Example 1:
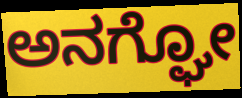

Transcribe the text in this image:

ಅನಗ್ಘೋ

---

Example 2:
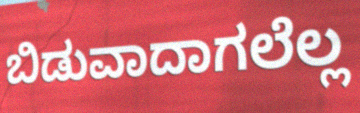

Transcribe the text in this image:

ಬಿಡುವಾದಾಗಲೆಲ್ಲ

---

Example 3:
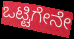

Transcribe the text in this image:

ಒಟ್ಟಿಗೇನೇ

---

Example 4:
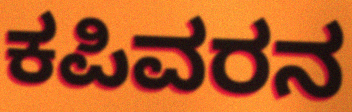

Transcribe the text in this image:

ಕಪಿವರನ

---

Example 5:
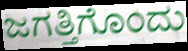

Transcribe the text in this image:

ಜಗತ್ತಿಗೊಂದು